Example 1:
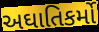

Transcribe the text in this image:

અઘાતિકર્મો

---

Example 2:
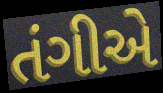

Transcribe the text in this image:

તંગીએ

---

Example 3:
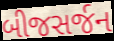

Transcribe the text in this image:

બીજસર્જન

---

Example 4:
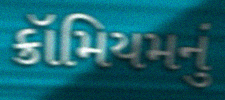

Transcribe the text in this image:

ક્રૉમિયમનું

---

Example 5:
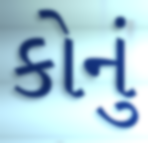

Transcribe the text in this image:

કોનું